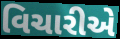
વિચારીએ